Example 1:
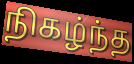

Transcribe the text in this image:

நிகழ்ந்த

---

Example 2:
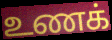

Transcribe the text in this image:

உணக்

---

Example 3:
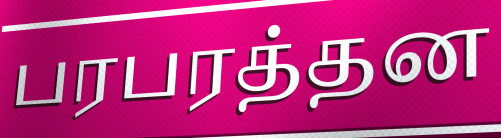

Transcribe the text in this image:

பரபரத்தன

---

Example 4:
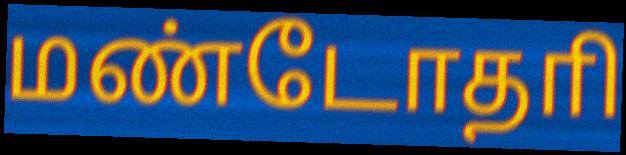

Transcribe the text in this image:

மண்டோதரி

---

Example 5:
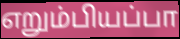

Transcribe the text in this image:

எறும்பியப்பா